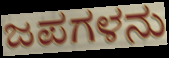
ಜಪಗಳನು